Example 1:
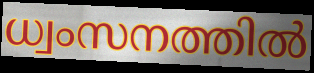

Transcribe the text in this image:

ധ്വംസനത്തിൽ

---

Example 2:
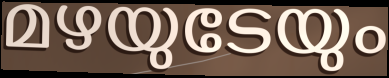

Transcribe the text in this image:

മഴയുടേയും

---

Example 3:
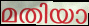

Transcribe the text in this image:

മതിയാ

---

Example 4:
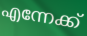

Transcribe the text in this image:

എന്നേക്ക്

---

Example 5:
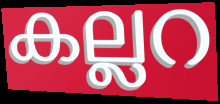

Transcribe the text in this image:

കല്ലറ